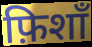
फ़िशाँ